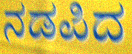
ನಡಪಿದ